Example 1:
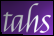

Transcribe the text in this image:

tahs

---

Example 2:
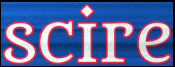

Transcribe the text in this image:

scire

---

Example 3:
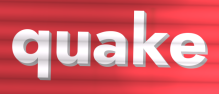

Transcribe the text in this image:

quake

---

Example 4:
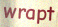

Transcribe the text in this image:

wrapt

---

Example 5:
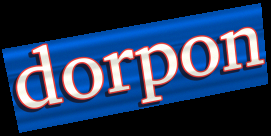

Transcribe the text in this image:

dorpon